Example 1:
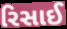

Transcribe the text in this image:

રિસાઈ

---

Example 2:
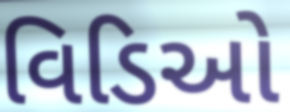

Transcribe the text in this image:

વિડિઓ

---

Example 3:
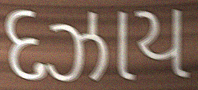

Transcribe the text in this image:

દઝાય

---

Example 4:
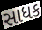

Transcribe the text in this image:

સાધક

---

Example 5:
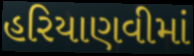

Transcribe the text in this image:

હરિયાણવીમાં